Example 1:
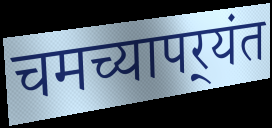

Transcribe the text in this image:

चमच्यापर्यंत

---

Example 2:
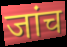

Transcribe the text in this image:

जांच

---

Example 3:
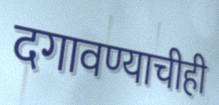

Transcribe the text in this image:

दगावण्याचीही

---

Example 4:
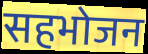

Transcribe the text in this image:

सहभोजन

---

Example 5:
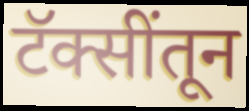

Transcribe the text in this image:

टॅक्सींतून